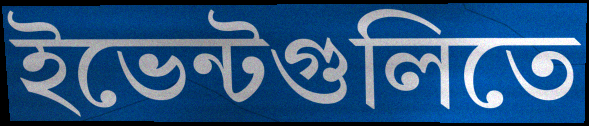
ইভেন্টগুলিতে